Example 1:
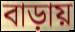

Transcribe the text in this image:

বাড়ায়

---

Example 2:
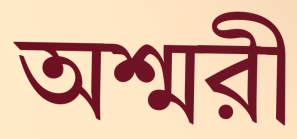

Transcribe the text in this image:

অশ্মরী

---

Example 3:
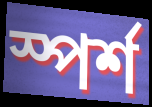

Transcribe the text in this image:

স্পর্শ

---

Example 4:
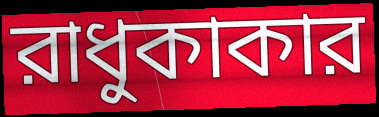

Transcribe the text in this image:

রাধুকাকার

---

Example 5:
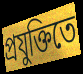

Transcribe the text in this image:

প্রযুক্তিতে